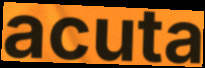
acuta